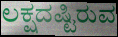
ಲಕ್ಷದಷ್ಟಿರುವ